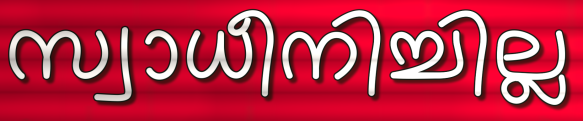
സ്വാധീനിച്ചില്ല